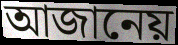
আজানেয়